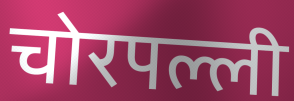
चोरपल्ली